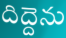
దిద్దెను